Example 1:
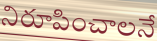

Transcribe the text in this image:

నిరూపించాలనే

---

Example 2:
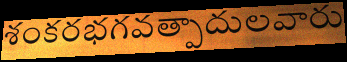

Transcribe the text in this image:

శంకరభగవత్పాదులవారు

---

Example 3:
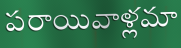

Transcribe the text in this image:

పరాయివాళ్లమా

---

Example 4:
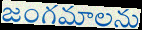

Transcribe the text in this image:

జంగమాలను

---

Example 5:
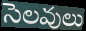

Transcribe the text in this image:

సెలవులు